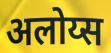
अलोय्स